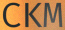
CKM